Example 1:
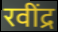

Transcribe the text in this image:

रवींद्र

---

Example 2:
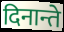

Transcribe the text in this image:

दिनान्ते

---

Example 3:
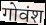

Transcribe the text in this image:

गोवंश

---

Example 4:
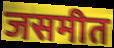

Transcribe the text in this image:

जसमीत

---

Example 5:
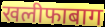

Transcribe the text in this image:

खलीफाबाग